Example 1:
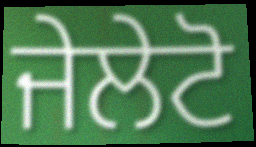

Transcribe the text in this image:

ਜੇਲੇਟੋ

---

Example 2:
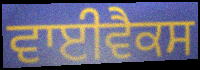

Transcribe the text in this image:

ਵਾਈਵੈਕਸ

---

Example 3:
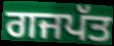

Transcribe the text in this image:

ਗਜਪੱਤ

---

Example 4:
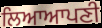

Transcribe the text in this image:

ਲਿਆਆਪਣੀ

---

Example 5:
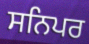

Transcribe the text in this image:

ਸਨਿਪਰ